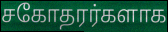
சகோதரர்களாக